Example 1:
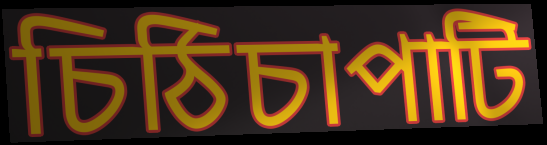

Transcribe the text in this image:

চিঠিচাপাটি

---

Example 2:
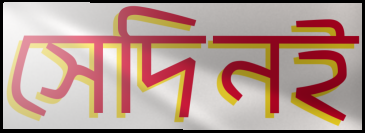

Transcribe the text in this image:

সেদিনই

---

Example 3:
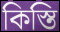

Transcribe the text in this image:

কিস্তি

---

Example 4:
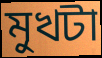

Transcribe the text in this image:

মুখটা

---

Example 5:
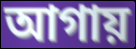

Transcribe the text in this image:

আগায়